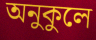
অনুকুলে